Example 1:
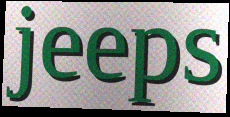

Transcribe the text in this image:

jeeps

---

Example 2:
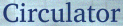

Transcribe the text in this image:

Circulator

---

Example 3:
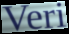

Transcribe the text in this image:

Veri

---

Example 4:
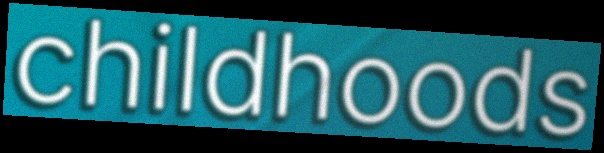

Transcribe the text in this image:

childhoods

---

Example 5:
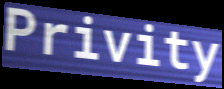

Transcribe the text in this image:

Privity